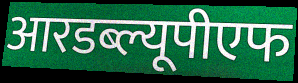
आरडब्ल्यूपीएफ